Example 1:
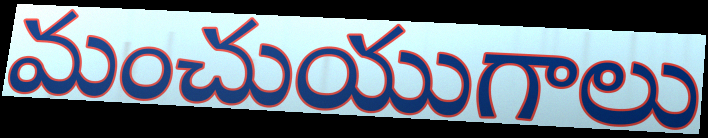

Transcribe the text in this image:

మంచుయుగాలు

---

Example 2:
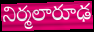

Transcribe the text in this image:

నిర్మలారూఢ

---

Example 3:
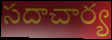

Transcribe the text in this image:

సదాచార్య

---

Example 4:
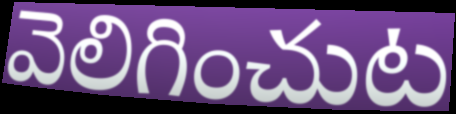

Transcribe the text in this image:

వెలిగించుట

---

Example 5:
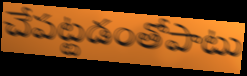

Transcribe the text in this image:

చేపట్టడంతోపాటు